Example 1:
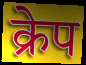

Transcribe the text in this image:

क्रेप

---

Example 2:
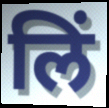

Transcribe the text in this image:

लिं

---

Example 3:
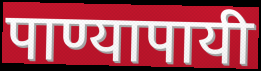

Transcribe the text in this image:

पाण्यापायी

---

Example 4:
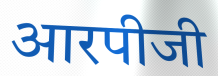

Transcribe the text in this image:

आरपीजी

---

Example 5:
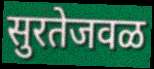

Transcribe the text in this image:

सुरतेजवळ